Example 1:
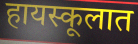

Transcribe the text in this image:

हायस्कूलात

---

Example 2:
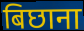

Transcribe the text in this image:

बिछाना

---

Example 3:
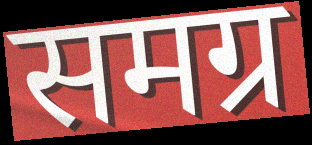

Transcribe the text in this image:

समग्र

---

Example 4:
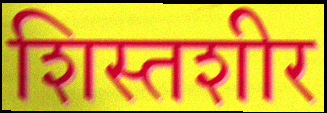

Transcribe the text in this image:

शिस्तशीर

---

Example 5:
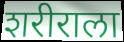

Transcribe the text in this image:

शरीराला